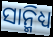
ସାନ୍ମିଧ୍ୟ